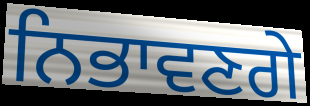
ਨਿਭਾਵਣਗੇ